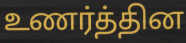
உணர்த்தின